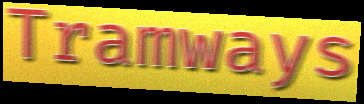
Tramways